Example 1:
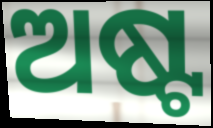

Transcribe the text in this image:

ଅଷ୍ଟ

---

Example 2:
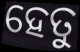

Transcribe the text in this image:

ହେତୁ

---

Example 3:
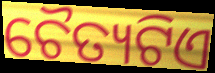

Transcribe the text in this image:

ଚୈତ୍ୟଟିଏ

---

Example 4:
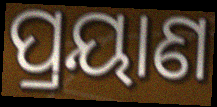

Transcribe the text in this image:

ପ୍ରୟାଣ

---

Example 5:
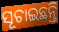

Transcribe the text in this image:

ସୂଚାଇଛନ୍ତି